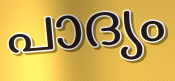
പാദ്യം